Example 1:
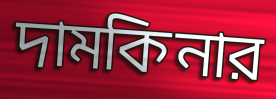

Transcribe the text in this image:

দামকিনার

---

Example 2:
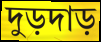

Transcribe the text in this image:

দুড়দাড়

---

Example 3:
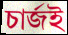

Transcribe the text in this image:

চার্জই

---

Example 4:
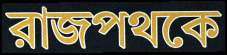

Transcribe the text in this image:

রাজপথকে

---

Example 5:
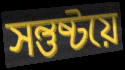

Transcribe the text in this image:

সন্তুষ্টয়ে